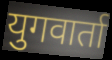
युगवार्ता